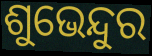
ଶୁଭେନ୍ଦୁର